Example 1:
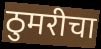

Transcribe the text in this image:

ठुमरीचा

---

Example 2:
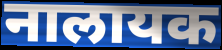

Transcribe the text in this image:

नालायक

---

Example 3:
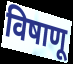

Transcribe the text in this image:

विषाणू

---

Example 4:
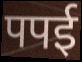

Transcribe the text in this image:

पपई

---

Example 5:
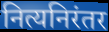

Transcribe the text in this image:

नित्यनिरंतर